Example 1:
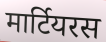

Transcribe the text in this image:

मार्टियरस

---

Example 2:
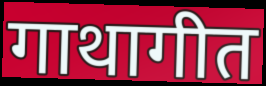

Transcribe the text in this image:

गाथागीत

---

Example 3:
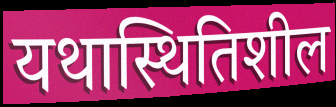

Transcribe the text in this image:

यथास्थितिशील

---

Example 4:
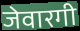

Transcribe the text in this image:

जेवारगी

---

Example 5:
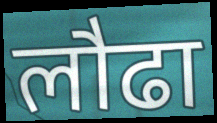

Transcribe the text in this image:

लौढा